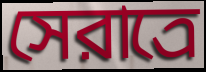
সেরাত্রে